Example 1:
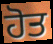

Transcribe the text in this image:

ਹੋਤ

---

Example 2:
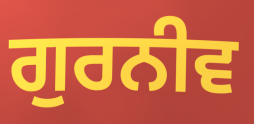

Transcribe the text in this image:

ਗੁਰਨੀਵ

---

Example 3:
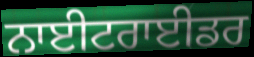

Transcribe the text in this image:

ਨਾਈਟਰਾਈਡਰ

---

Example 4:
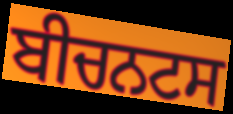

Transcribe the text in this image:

ਬੀਚਨਟਸ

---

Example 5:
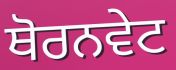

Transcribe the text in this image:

ਥੋਰਨਵੇਟ